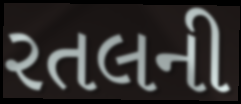
રતલની